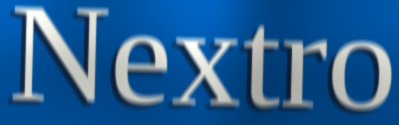
Nextro